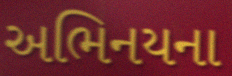
અભિનયના